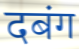
दबंग